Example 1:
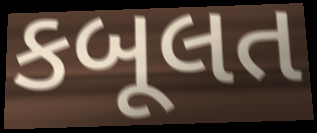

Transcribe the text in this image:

કબૂલત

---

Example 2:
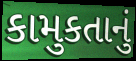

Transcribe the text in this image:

કામુકતાનું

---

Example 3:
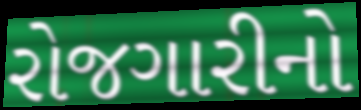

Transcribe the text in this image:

રોજગારીનો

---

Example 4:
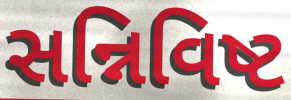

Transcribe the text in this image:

સન્નિવિષ્ટ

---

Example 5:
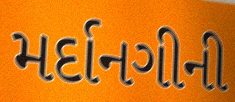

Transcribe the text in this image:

મર્દાનગીની